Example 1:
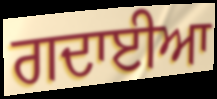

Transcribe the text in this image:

ਗਦਾਈਆ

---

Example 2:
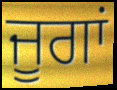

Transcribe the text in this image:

ਜੂਗਾਂ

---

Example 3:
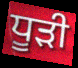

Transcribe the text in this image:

ਧੂੜੀ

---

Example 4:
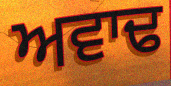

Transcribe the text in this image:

ਅਵਾਢ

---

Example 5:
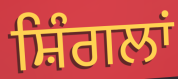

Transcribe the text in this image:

ਸ਼ਿੰਗਲਾਂ